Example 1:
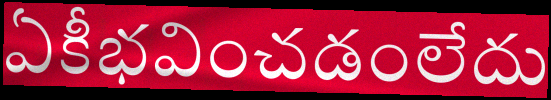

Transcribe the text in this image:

ఏకీభవించడంలేదు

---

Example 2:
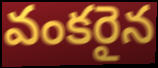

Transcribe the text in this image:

వంకరైన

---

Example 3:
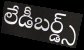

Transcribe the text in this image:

లేడీబర్డ్స్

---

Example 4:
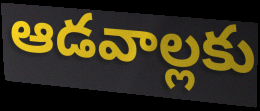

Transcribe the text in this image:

ఆడవాల్లకు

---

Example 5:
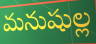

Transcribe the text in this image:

మనుషుల్ల